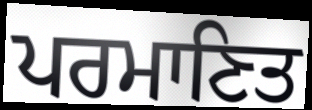
ਪਰਮਾਣਿਤ